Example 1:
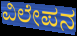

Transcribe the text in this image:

ವಿಲೇಪನ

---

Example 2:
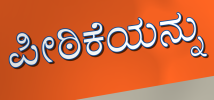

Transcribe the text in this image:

ಪೀಠಿಕೆಯನ್ನು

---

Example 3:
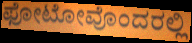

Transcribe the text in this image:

ಫೋಟೋವೊಂದರಲ್ಲಿ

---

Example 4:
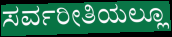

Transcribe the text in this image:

ಸರ್ವರೀತಿಯಲ್ಲೂ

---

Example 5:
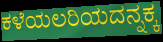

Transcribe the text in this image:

ಕಳೆಯಲರಿಯದನ್ನಕ್ಕ